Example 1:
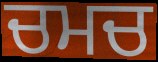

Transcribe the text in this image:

ਚਮਚ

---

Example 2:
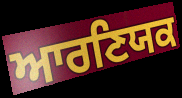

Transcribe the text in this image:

ਆਰਣਿਯਕ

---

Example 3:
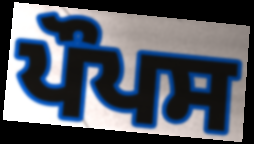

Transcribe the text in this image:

ਪੌਪਸ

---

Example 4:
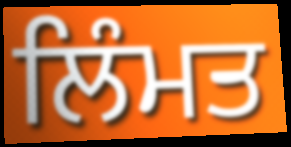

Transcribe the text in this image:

ਲਿੰਮਤ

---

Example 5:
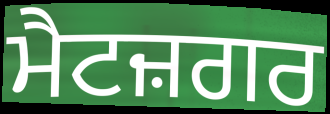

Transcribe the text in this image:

ਮੈਟਜ਼ਗਰ